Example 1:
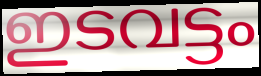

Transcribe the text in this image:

ഇടവട്ടം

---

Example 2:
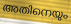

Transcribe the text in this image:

അതിനെയും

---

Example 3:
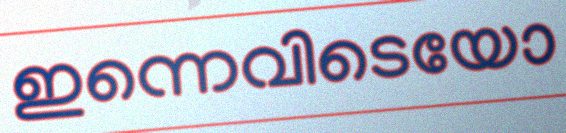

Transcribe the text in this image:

ഇന്നെവിടെയോ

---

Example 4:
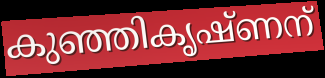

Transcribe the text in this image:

കുഞ്ഞികൃഷ്ണന്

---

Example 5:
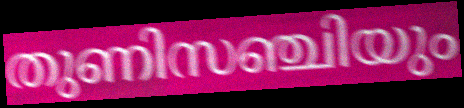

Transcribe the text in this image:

തുണിസഞ്ചിയും